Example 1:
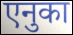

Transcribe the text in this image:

एनुका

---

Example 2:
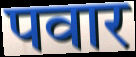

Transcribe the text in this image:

पवार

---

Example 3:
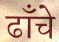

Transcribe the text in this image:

ढाँचे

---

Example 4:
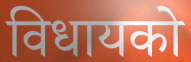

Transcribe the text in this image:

विधायको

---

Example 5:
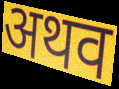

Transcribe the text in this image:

अथव